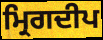
ਮ੍ਰਿਗਦੀਪ